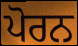
ਪੋਰਨ